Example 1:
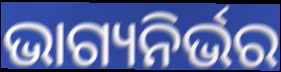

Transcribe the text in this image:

ଭାଗ୍ୟନିର୍ଭର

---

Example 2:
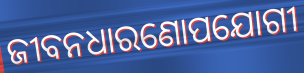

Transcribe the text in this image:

ଜୀବନଧାରଣୋପଯୋଗୀ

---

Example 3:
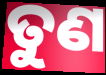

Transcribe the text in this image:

ତୁଣ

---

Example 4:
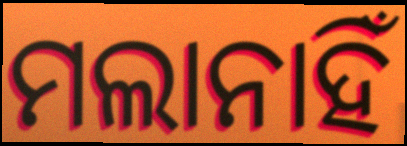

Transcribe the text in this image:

ମଲାନାହିଁ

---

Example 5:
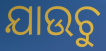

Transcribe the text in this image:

ଯାଉଚୁ